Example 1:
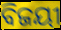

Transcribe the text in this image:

ବିଜୟୀ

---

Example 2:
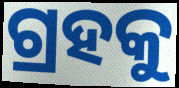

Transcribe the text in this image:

ଗ୍ରହକୁ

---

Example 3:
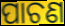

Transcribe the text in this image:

ପାଚଣ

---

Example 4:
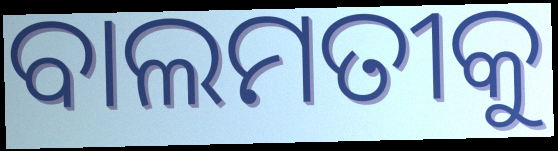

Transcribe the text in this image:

ବାଲମତୀକୁ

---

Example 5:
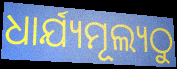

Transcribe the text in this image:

ଧାର୍ଯ୍ୟମୂଲ୍ୟଠୁ